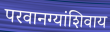
परवानग्यांशिवाय